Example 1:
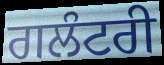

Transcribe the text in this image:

ਗਲੰਟਰੀ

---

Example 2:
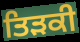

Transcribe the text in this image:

ਤਿੜਕੀ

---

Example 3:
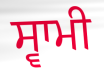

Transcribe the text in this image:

ਸ੍ਵਾਮੀ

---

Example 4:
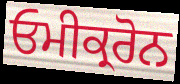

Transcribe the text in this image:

ਓਮੀਕ੍ਰਰੋਨ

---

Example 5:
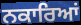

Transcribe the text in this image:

ਨਕਾਰਿਆਂ